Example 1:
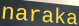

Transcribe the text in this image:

naraka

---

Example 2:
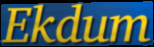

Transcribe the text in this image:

Ekdum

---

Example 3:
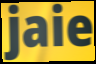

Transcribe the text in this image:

jaie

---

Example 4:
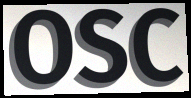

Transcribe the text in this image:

OSC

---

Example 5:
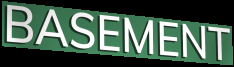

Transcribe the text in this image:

BASEMENT